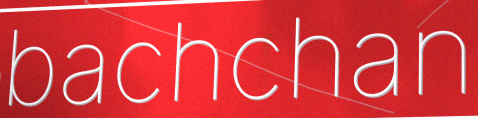
bachchan